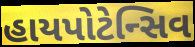
હાયપોટેન્સિવ